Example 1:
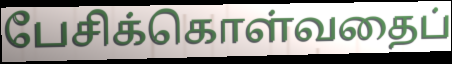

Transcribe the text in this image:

பேசிக்கொள்வதைப்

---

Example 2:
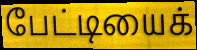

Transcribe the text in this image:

பேட்டியைக்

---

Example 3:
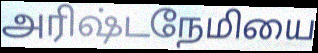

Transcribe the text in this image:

அரிஷ்டநேமியை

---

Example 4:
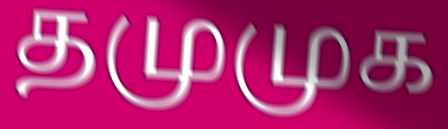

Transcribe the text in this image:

தமுமுக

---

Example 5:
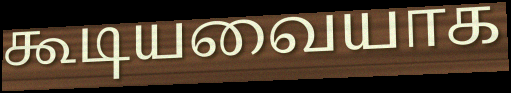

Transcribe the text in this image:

கூடியவையாக